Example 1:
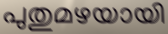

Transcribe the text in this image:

പുതുമഴയായി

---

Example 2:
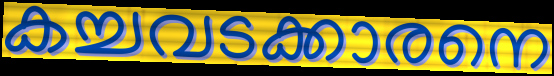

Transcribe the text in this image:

കച്ചവടക്കാരനെ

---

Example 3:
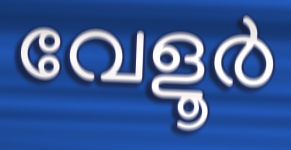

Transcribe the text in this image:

വേളൂർ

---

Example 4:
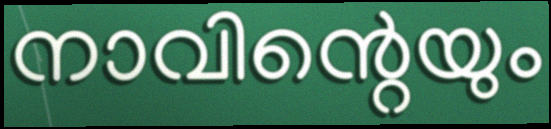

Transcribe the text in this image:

നാവിന്റെയും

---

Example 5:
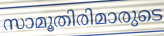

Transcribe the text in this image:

സാമൂതിരിമാരുടെ